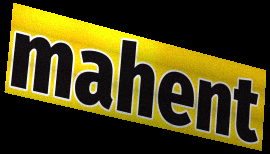
mahent